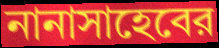
নানাসাহেবের